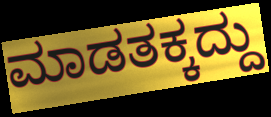
ಮಾಡತಕ್ಕದ್ದು